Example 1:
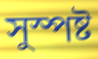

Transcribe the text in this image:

সুস্পষ্ট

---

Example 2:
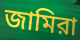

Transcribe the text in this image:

জামিরা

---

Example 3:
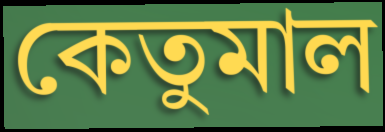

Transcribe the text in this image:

কেতুমাল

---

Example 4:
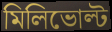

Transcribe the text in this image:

মিলিভোল্ট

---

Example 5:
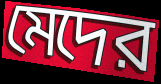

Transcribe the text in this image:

মেদের